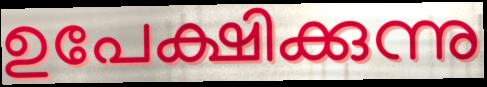
ഉപേക്ഷിക്കുന്നു